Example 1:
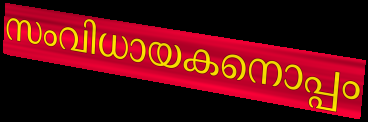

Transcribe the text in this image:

സംവിധായകനൊപ്പം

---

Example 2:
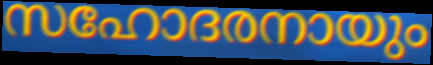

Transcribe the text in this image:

സഹോദരനായും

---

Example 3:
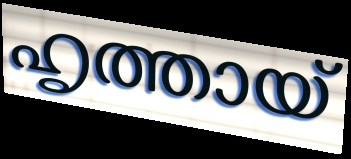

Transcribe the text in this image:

ഹൃത്തായ്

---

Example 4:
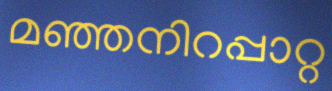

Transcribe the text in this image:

മഞ്ഞനിറപ്പാറ്റ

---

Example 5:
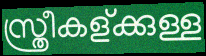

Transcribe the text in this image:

സ്ത്രീകള്ക്കുള്ള